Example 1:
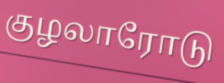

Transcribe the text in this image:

குழலாரோடு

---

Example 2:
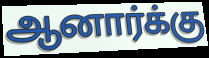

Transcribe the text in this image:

ஆனார்க்கு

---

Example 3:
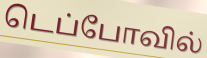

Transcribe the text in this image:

டெப்போவில்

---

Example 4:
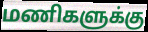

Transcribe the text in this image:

மணிகளுக்கு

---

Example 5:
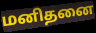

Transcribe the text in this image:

மனிதனை